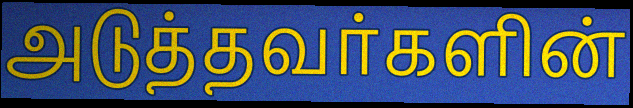
அடுத்தவர்களின்